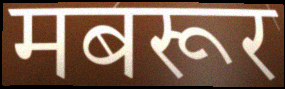
मबरूर